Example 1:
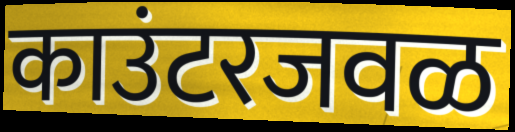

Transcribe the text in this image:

काउंटरजवळ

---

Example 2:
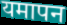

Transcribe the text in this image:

यमापन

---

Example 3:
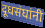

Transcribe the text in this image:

दूधसंघांनी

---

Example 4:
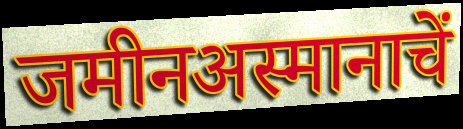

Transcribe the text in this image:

जमीनअस्मानाचें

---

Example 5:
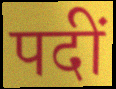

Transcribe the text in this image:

पदीं